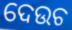
ଦେଉଚ